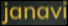
janavi